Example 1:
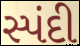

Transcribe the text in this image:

સ્પંદી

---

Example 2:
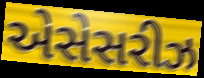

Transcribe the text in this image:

એસેસરીઝ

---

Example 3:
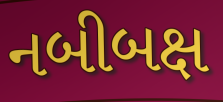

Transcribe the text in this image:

નબીબક્ષ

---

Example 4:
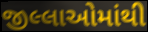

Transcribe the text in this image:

જીલ્લાઓમાંથી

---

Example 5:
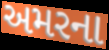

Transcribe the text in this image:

અમરના